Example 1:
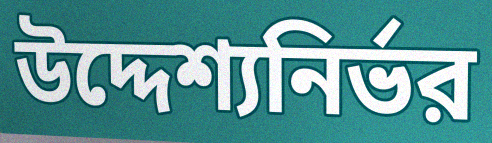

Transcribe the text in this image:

উদ্দেশ্যনির্ভর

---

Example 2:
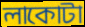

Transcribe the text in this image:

লাকোটা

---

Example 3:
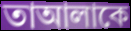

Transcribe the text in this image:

তাআলাকে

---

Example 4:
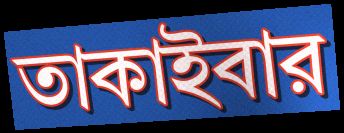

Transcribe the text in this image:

তাকাইবার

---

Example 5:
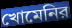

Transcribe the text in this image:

খোমেনির